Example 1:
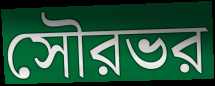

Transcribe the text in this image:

সৌরভর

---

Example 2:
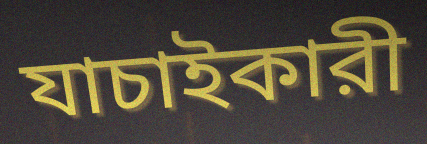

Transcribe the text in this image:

যাচাইকারী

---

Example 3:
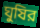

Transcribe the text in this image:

ঘুষির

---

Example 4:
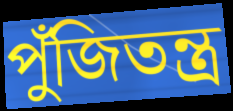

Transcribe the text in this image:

পুঁজিতন্ত্র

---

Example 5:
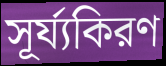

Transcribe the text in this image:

সূর্য্যকিরণ